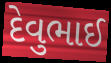
દેવુભાઈ